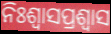
ନିଃଶ୍ୱାସପ୍ରଶ୍ୱାସ